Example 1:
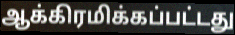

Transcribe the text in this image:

ஆக்கிரமிக்கப்பட்டது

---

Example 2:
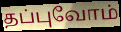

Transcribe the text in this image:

தப்புவோம்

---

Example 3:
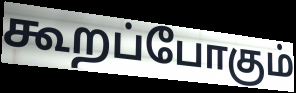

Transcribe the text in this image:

கூறப்போகும்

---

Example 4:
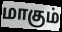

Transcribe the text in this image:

மாகும்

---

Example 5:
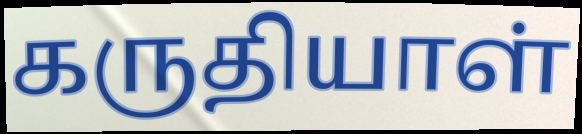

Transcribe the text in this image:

கருதியாள்